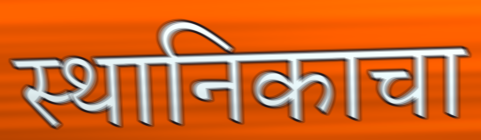
स्थानिकाचा